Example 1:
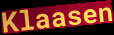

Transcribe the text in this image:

Klaasen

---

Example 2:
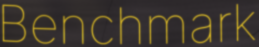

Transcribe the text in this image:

Benchmark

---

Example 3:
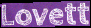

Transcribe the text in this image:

Lovett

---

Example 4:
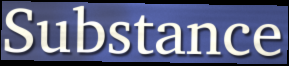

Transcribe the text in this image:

Substance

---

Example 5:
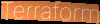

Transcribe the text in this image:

Terraform